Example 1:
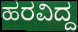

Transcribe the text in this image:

ಹರವಿದ್ದ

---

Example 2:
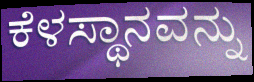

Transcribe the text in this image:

ಕೆಳಸ್ಥಾನವನ್ನು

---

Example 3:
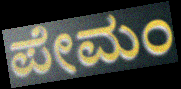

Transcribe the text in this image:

ಪೇಮಂ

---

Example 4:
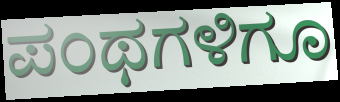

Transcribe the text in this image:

ಪಂಥಗಳಿಗೂ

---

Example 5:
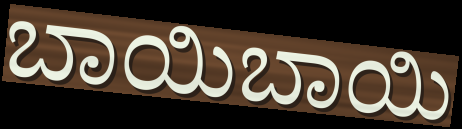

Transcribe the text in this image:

ಬಾಯಿಬಾಯಿ